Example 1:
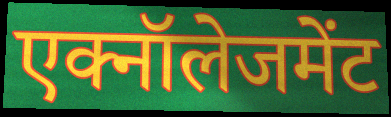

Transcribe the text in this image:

एक्नॉलेजमेंट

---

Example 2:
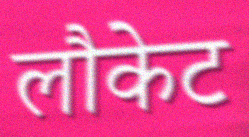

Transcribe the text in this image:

लौकेट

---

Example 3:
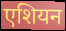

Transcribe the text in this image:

एशियन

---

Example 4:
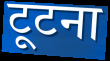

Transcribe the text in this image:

टूटना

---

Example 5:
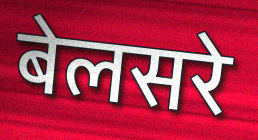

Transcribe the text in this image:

बेलसरे